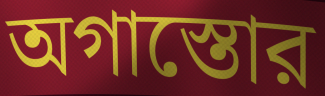
অগাস্তোর